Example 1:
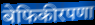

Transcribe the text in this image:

बेफिकीरपणा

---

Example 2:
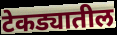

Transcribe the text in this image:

टेकड्यातील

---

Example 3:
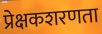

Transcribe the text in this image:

प्रेक्षकशरणता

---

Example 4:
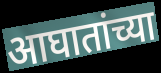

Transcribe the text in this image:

आघातांच्या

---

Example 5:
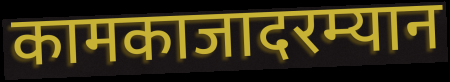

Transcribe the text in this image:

कामकाजादरम्यान